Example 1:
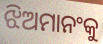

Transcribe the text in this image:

ଝିଅମାନଂକୁ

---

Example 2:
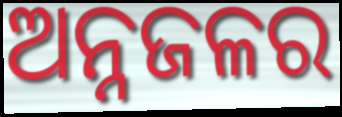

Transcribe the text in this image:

ଅନ୍ନଜଳର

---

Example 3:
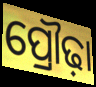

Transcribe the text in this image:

ପ୍ରୌଢ଼ା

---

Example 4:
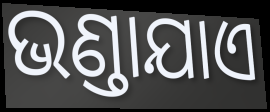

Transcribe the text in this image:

ଭଣ୍ଡାଯାଏ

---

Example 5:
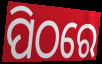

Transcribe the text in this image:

ପିଠରେ